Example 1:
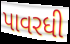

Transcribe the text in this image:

પાવરધી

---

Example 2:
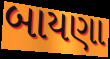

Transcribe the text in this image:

બાયણા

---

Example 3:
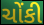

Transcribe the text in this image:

ચોંકી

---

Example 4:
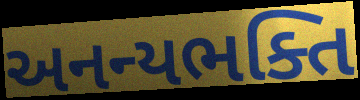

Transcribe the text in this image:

અનન્યભક્તિ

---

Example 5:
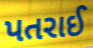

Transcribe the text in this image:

પતરાઈ